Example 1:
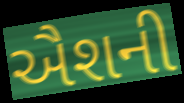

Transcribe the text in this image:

ઐશની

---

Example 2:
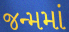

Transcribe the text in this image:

જન્મમાં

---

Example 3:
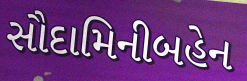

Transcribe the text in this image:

સૌદામિનીબહેન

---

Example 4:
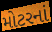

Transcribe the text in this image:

મોટરનાં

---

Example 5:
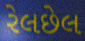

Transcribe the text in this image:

રેલછેલ